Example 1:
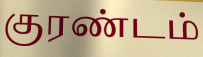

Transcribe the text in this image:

குரண்டம்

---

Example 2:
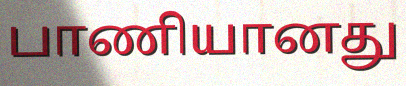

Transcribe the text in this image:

பாணியானது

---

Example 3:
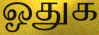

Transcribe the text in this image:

ஓதுக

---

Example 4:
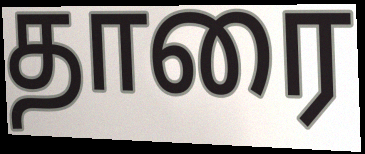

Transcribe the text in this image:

தாரை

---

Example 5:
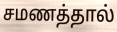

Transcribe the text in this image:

சமணத்தால்